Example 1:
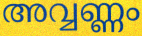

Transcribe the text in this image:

അവ്വണ്ണം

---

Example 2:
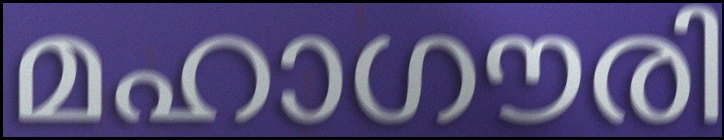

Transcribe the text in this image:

മഹാഗൗരി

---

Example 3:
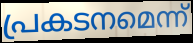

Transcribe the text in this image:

പ്രകടനമെന്ന്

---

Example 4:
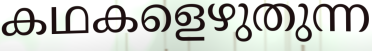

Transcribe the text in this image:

കഥകളെഴുതുന്ന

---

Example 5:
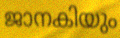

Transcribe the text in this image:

ജാനകിയും